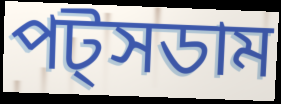
পট্‌সডাম